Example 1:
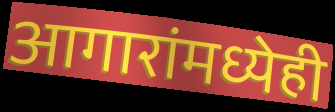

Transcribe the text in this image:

आगारांमध्येही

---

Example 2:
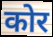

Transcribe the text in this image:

कोर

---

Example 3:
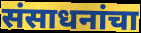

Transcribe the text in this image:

संसाधनांचा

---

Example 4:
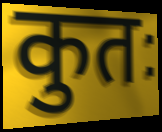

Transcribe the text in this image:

कुतः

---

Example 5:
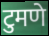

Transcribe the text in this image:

टुमणे